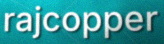
rajcopper